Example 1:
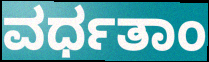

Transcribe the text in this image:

ವರ್ಧತಾಂ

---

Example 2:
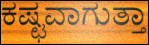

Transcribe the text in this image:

ಕಷ್ಟವಾಗುತ್ತಾ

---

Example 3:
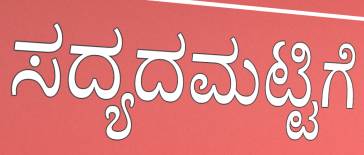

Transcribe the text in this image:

ಸದ್ಯದಮಟ್ಟಿಗೆ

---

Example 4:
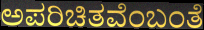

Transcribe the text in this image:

ಅಪರಿಚಿತವೆಂಬಂತೆ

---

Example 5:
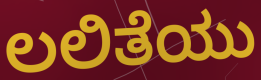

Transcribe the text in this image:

ಲಲಿತೆಯು